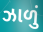
ઝાળું